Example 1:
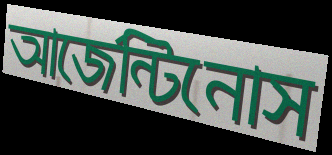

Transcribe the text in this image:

আর্জেন্টিনোস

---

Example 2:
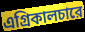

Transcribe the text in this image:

এগ্রিকালচারে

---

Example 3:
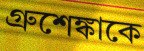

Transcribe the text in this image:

গ্রুশেঙ্কাকে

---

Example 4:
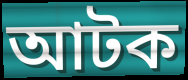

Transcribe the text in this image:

আটক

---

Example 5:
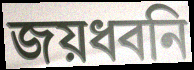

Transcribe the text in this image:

জয়ধবনি